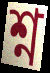
শ্ন